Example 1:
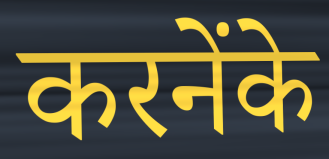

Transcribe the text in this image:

करनेंके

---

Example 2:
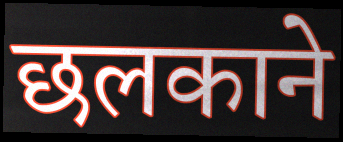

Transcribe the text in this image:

छलकाने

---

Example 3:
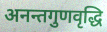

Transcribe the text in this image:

अनन्तगुणवृद्धि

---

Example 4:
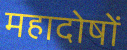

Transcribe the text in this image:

महादोषों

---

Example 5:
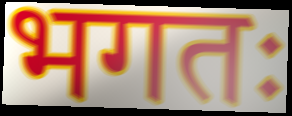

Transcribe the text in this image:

भगतः